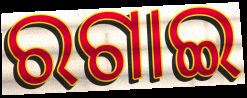
ରଗାଇ